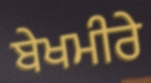
ਬੇਖਮੀਰੇ